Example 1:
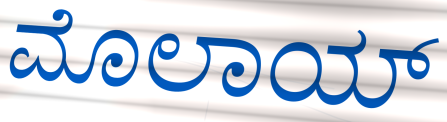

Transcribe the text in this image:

ಮೊಲಾಯ್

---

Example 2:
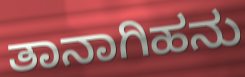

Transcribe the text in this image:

ತಾನಾಗಿಹನು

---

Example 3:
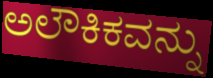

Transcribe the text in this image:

ಅಲೌಕಿಕವನ್ನು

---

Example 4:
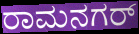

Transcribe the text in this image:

ರಾಮನಗರ್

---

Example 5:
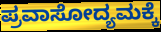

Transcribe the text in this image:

ಪ್ರವಾಸೋದ್ಯಮಕ್ಕೆ